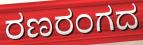
ರಣರಂಗದ